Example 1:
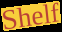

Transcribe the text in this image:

Shelf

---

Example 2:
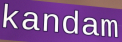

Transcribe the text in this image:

kandam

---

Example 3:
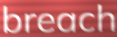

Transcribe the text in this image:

breach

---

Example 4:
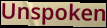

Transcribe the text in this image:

Unspoken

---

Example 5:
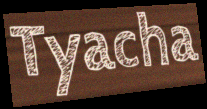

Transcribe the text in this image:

Tyacha